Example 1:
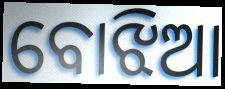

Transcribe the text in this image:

ବୋଝିଆ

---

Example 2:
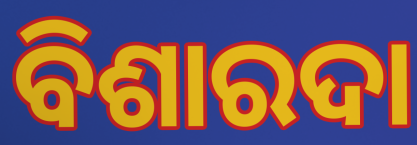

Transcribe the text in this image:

ବିଶାରଦା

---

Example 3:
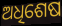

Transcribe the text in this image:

ଅଧିଶେଷ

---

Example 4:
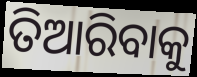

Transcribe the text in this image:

ତିଆରିବାକୁ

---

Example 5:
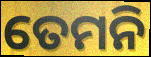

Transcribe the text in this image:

ତେମନି